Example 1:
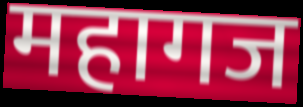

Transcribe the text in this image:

महागज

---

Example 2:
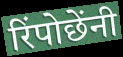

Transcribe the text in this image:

रिंपोछेंनी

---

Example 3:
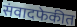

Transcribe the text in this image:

संवादफेकीत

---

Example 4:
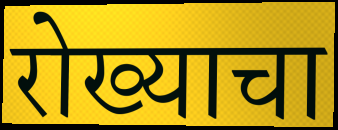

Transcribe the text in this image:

रोख्याचा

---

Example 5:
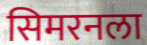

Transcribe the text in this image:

सिमरनला